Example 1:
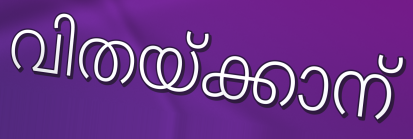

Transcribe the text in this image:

വിതയ്ക്കാന്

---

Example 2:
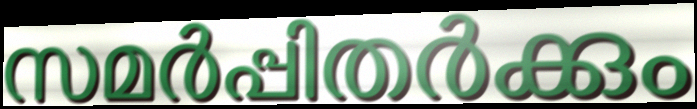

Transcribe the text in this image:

സമർപ്പിതർക്കും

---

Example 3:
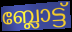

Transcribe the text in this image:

ബ്ലോട്ട്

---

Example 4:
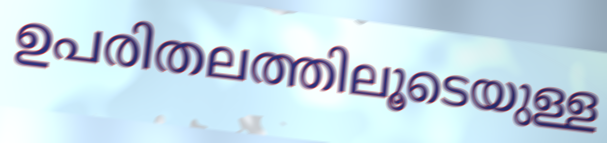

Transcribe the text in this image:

ഉപരിതലത്തിലൂടെയുള്ള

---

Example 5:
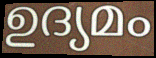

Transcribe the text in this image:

ഉദ്യമം